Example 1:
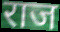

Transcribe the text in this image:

राज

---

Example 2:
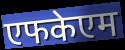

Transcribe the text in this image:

एफकेएम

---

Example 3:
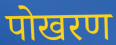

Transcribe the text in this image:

पोखरण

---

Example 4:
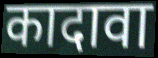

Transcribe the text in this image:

कादावा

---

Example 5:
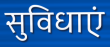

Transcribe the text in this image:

सुविधाएं